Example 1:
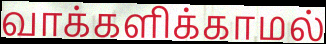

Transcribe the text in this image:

வாக்களிக்காமல்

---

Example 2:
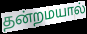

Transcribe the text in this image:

தன்றமயால்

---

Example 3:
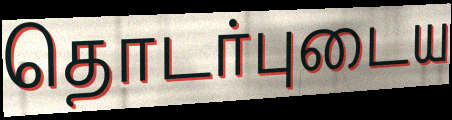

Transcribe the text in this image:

தொடர்புடைய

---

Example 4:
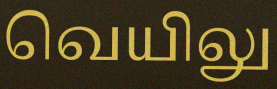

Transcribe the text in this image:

வெயிலு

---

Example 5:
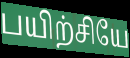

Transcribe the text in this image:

பயிற்சியே